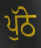
ਪੁੱਠੇ